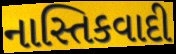
નાસ્તિકવાદી